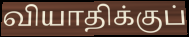
வியாதிக்குப்